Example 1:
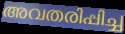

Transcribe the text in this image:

അവതരിപ്പിച്ച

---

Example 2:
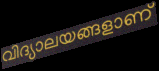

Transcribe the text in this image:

വിദ്യാലയങ്ങളാണ്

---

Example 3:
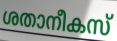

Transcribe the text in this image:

ശതാനീകസ്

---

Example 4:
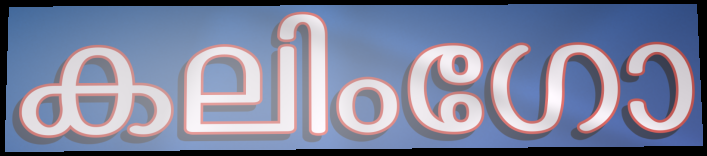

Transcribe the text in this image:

കലിംഗോ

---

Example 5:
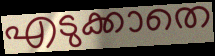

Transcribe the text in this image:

എടുക്കാതെ